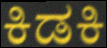
ಕಿಡಕಿ